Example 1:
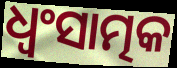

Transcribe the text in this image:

ଧ୍ଵଂସାତ୍ମକ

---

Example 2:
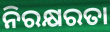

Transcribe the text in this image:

ନିରକ୍ଷରତା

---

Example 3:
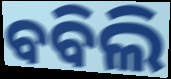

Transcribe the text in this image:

ବବିଲି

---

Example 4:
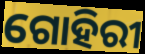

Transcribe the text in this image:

ଗୋହିରୀ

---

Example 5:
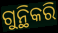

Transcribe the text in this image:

ଗୁନ୍ଥିକରି